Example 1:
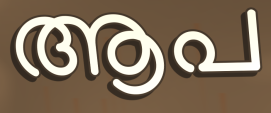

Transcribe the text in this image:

ആപ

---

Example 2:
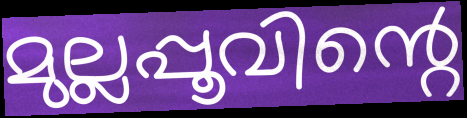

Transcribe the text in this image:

മുല്ലപ്പൂവിന്റെ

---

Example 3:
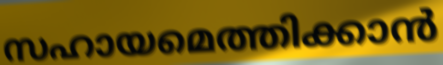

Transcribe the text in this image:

സഹായമെത്തിക്കാൻ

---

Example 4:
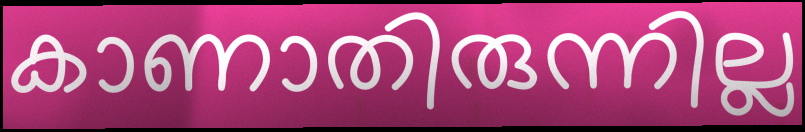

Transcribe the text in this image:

കാണാതിരുന്നില്ല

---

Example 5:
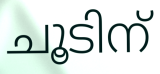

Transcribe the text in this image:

ചൂടിന്